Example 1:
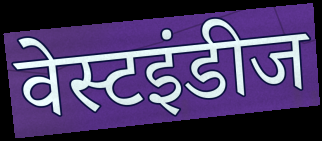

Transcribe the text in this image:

वेस्टइंडीज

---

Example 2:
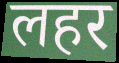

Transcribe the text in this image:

लहर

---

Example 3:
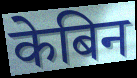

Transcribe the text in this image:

केबिन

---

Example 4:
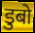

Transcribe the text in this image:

डुबो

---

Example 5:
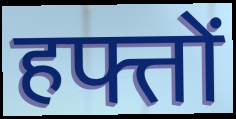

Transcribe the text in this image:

हफ्तों